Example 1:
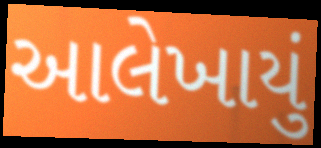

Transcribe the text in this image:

આલેખાયું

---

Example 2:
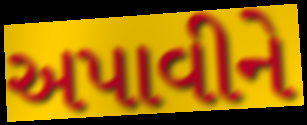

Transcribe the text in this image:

અપાવીને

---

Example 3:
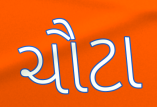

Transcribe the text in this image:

ચૌટા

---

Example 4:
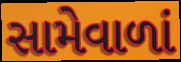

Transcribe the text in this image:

સામેવાળાં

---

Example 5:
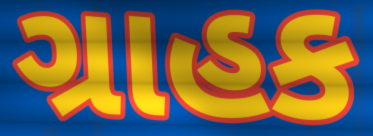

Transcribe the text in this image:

ગ્રાહક